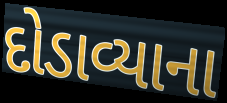
દોડાવ્યાના